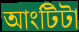
আংটিটা